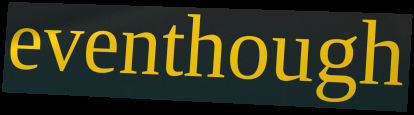
eventhough